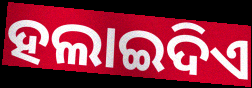
ହଲାଇଦିଏ